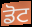
ਡੋਟ